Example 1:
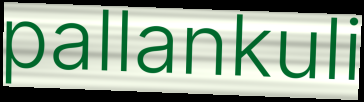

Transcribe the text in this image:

pallankuli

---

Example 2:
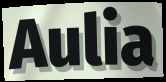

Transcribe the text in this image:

Aulia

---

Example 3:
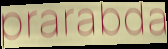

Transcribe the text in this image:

prarabda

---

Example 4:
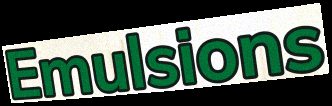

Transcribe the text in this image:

Emulsions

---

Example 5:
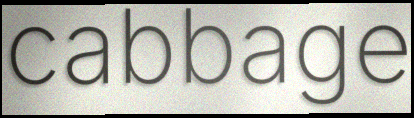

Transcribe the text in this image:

cabbage